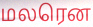
மலரென